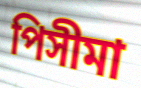
পিসীমা